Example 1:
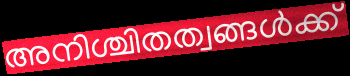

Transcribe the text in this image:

അനിശ്ചിതത്വങ്ങൾക്ക്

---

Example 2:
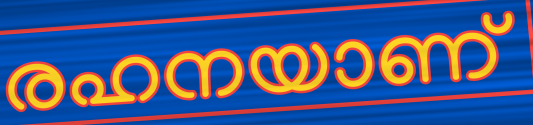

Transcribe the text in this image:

രഹനയാണ്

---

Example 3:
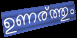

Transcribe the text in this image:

ഉണര്ത്തും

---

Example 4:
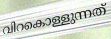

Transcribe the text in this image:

വിറകൊള്ളുന്നത്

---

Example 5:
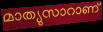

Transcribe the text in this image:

മാത്യുസാറാണ്